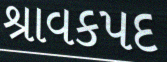
શ્રાવકપદ